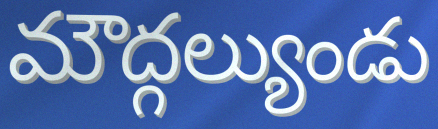
మౌద్గల్యుండు